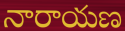
నారాయణ